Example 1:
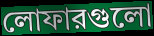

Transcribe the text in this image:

লোফারগুলো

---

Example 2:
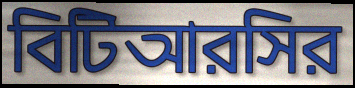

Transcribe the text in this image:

বিটিআরসির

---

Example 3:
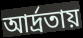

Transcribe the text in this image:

আর্দ্রতায়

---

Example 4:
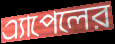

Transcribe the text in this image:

এ্যাপেলের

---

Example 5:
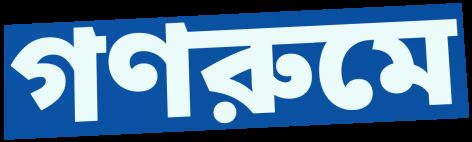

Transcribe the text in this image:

গণরুমে